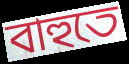
বাহুতে